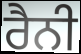
ਰੈਨੀ